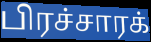
பிரச்சாரக்